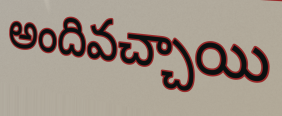
అందివచ్చాయి